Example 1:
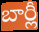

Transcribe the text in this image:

బార్లీ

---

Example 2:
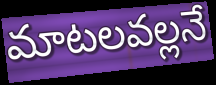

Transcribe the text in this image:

మాటలవల్లనే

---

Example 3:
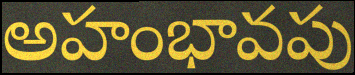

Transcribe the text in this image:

అహంభావపు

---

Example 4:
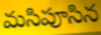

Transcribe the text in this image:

మసిపూసిన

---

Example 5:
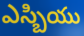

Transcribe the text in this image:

ఎస్బియు